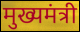
मुख्‍यमंत्री